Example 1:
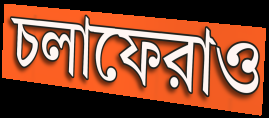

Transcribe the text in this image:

চলাফেরাও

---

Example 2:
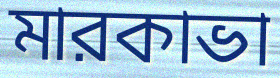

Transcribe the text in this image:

মারকাভা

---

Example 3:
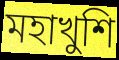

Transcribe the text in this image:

মহাখুশি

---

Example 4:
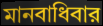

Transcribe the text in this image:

মানবাধিবার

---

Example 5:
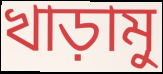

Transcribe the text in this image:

খাড়ামু